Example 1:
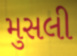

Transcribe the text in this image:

મુસલી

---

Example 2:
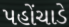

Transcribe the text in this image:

પહોંચાડે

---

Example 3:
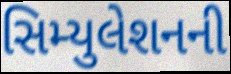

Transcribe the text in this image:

સિમ્યુલેશનની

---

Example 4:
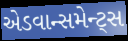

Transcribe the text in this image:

એડવાન્સમેન્ટ્સ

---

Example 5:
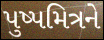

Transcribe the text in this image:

પુષ્પમિત્રને